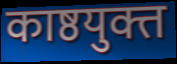
काष्ठयुक्त